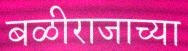
बळीराजाच्या